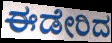
ಈಡೇರಿದ